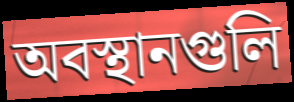
অবস্থানগুলি